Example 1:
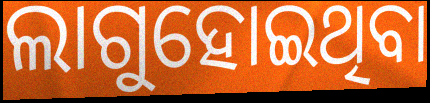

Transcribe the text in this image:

ଲାଗୁହୋଇଥିବା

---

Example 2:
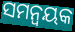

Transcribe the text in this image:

ସମନ୍ୱୟକ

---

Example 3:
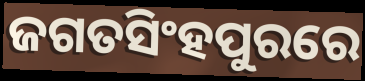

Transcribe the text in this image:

ଜଗତସିଂହପୁରରେ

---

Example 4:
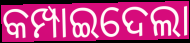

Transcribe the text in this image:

କମ୍ପାଇଦେଲା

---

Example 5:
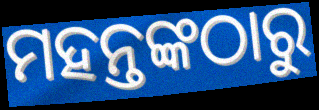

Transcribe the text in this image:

ମହନ୍ତଙ୍କଠାରୁ